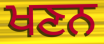
ਖਣਨ